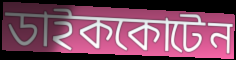
ডাইককোটেন